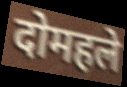
दोमहले